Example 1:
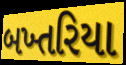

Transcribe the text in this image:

બખ્તરિયા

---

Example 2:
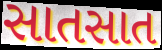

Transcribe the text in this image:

સાતસાત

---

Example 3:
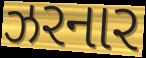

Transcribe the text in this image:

ઝરનાર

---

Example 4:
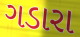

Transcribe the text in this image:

ગડારા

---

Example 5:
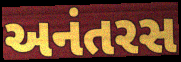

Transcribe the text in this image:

અનંતરસ